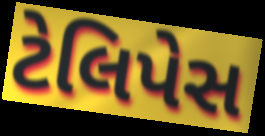
ટેલિપેસ